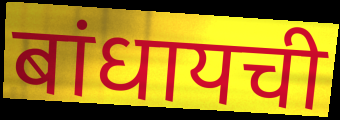
बांधायची